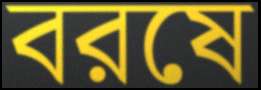
বরষে